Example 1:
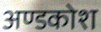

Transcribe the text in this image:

अण्डकोश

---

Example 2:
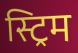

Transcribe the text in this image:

स्ट्रिम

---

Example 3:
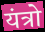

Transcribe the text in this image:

यंत्रो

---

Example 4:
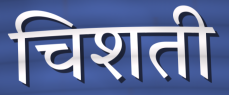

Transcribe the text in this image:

चिशती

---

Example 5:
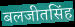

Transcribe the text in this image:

बलजीतसिंह